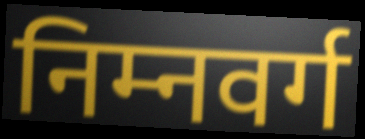
निम्नवर्ग